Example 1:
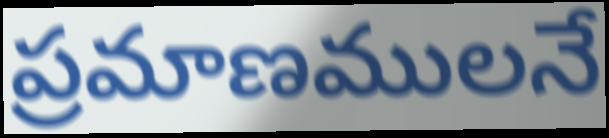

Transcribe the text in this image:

ప్రమాణములనే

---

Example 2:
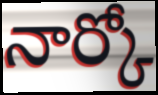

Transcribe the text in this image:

నార్కో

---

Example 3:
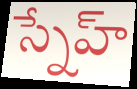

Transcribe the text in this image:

స్నేహ్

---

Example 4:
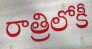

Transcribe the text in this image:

రాత్రిలోకీ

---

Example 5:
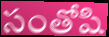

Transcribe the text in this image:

సంతోషి